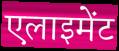
एलाइमेंट